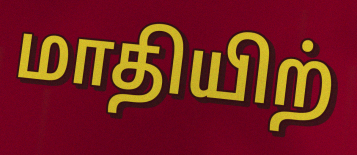
மாதியிற்